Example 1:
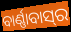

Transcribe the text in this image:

ବାର୍ଣ୍ଣାବାସ୍‌ର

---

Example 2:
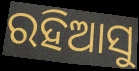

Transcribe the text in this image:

ରହିଆସୁ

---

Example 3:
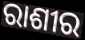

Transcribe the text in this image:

ରାଶୀର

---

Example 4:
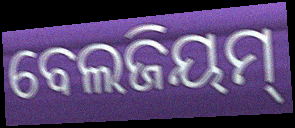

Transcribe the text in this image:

ବେଲଜିୟମ୍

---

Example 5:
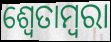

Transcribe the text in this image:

ଶ୍ୱେତାମ୍ବରା